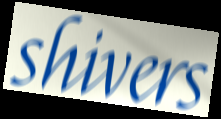
shivers